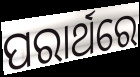
ପରାର୍ଥରେ